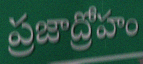
ప్రజాద్రోహం